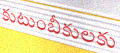
కుటుంబీకులకు